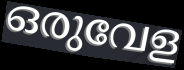
ഒരുവേള